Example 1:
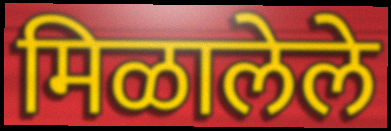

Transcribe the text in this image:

मिळालेले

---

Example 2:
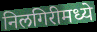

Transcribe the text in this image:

निलगिरीमध्ये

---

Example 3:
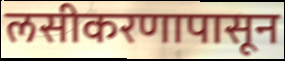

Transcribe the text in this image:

लसीकरणापासून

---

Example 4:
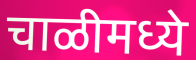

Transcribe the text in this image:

चाळीमध्ये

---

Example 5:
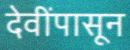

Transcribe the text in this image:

देवींपासून